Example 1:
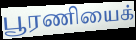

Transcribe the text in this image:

பூரணியைக்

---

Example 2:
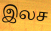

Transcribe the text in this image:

இலச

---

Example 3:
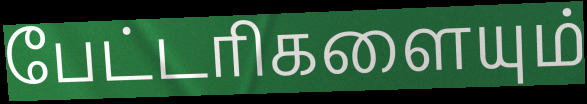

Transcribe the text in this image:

பேட்டரிகளையும்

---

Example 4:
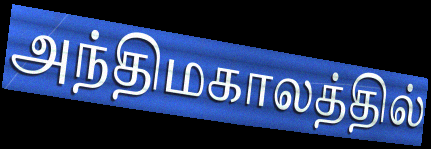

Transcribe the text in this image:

அந்திமகாலத்தில்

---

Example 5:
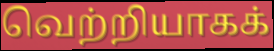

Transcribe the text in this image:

வெற்றியாகக்